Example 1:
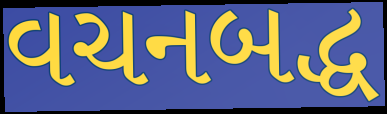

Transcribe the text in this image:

વચનબદ્ધ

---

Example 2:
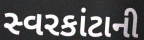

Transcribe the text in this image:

સ્વરકાંટાની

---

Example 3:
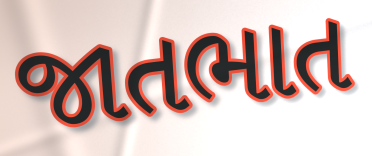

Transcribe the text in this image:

જાતભાત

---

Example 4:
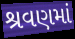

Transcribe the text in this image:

શ્રવણમાં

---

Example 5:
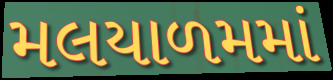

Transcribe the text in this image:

મલયાળમમાં